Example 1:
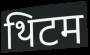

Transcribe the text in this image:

थिटम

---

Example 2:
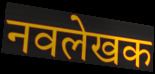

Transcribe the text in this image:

नवलेखक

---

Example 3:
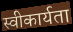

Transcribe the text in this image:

स्वीकार्यता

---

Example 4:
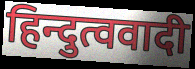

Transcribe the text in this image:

हिन्दुत्ववादी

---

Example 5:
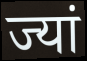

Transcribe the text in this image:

ज्यां